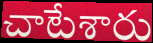
చాటేశారు